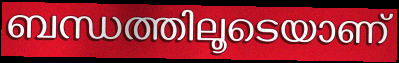
ബന്ധത്തിലൂടെയാണ്